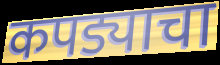
कपड्याचा